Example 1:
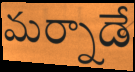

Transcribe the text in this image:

మర్నాడే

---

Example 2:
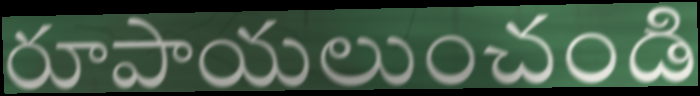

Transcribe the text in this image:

రూపాయలుంచండి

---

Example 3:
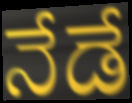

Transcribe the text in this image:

నేడే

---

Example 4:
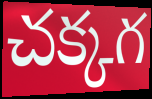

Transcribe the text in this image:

చక్కగ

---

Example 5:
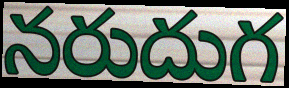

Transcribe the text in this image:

నరుదుగ